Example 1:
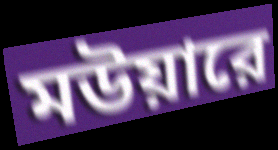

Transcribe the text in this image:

মউয়ারে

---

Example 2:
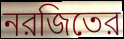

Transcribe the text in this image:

নরজিতের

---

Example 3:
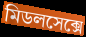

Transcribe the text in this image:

মিডলসেক্সে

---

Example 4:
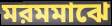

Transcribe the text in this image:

মরমমাঝে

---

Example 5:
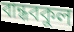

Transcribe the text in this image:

বান্ধবকুল